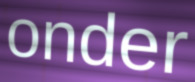
onder